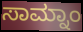
ಸಾಮ್ನಾಂ